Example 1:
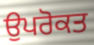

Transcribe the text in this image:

ਉਪਰੋਕਤ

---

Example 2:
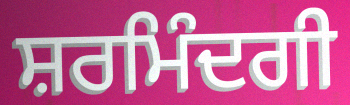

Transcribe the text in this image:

ਸ਼ਰਮਿੰਦਗੀ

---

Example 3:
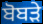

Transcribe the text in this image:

ਬੋਬੜੇ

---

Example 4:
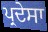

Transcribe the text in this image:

ਪ੍ਰਦੇਸਾ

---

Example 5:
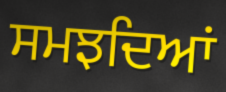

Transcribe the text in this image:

ਸਮਝਦਿਆਂ